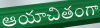
ఆయాచితంగా